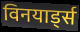
विनयार्ड्स